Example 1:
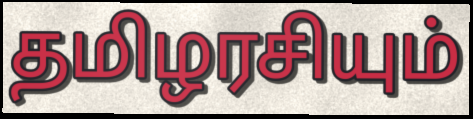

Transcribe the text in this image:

தமிழரசியும்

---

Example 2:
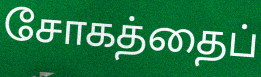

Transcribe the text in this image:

சோகத்தைப்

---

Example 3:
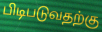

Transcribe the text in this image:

பிடிபடுவதற்கு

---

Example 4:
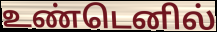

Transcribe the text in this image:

உண்டெனில்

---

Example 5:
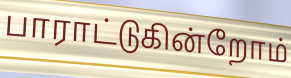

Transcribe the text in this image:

பாராட்டுகின்றோம்